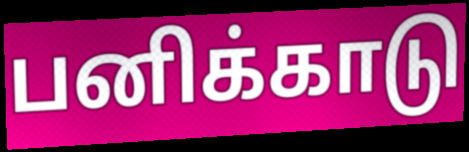
பனிக்காடு